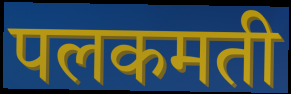
पलकमती